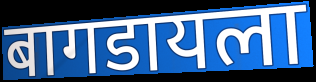
बागडायला